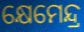
କ୍ଷେମେନ୍ଦ୍ର